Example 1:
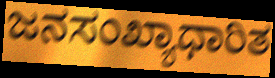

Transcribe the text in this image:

ಜನಸಂಖ್ಯಾಧಾರಿತ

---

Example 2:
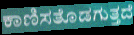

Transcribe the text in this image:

ಕಾಣಿಸತೊಡಗುತ್ತದೆ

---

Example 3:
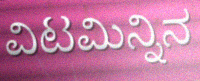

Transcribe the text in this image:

ವಿಟಮಿನ್ನಿನ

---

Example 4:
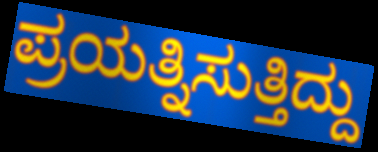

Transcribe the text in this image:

ಪ್ರಯತ್ನಿಸುತ್ತಿದ್ದು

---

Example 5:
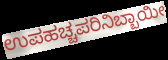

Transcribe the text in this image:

ಉಪಹಚ್ಚಪರಿನಿಬ್ಬಾಯೀ